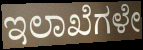
ಇಲಾಖೆಗಳೇ